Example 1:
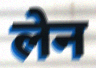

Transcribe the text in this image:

लेन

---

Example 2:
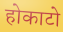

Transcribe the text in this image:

होकाटो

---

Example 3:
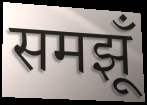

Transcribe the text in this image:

समझूँ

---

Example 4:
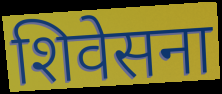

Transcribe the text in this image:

शिवेसना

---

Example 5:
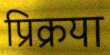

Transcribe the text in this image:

प्रिक्रया